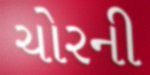
ચોરની